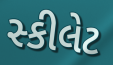
સ્કીલેટ